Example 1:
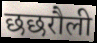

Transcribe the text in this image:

छछरौली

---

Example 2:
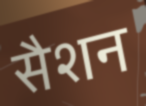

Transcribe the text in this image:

सैशन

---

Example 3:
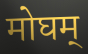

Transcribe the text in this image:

मोघम्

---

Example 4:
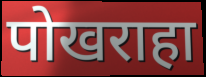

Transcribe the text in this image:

पोखराहा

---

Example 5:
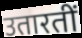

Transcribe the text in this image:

उतारतीं